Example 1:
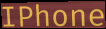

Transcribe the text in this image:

IPhone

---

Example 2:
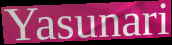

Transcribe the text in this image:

Yasunari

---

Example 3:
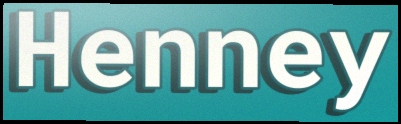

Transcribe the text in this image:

Henney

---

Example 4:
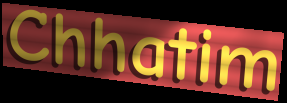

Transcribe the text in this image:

Chhatim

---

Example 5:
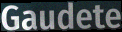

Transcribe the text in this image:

Gaudete